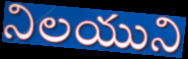
నిలయుని